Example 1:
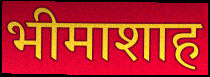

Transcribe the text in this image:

भीमाशाह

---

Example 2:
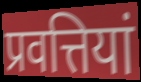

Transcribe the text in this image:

प्रवत्तियां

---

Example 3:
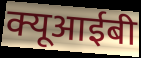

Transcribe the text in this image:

क्यूआईबी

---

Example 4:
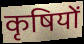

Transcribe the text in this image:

कृषियों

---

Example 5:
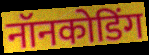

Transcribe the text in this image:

नॉनकोडिंग